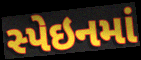
સ્પેઇનમાં